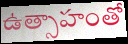
ఉత్సాహంతో